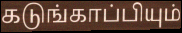
கடுங்காப்பியும்